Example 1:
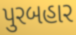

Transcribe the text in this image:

પુરબહાર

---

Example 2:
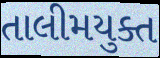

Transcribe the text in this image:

તાલીમયુક્ત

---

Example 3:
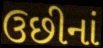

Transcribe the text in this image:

ઉછીનાં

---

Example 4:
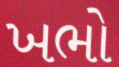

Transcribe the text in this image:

ખભો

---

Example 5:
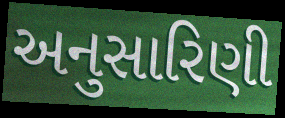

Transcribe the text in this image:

અનુસારિણી